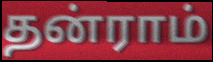
தன்ராம்